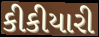
કીકીયારી